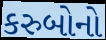
કરુબોનો